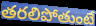
తరలిపోతుంటే